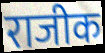
राजीक